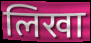
लिखा